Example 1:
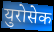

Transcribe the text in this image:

युरोसेक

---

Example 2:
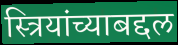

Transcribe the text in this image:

स्त्रियांच्याबद्दल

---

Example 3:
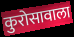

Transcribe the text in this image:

कुरोसावाला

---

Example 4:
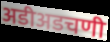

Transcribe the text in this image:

अडीअडचणी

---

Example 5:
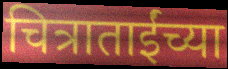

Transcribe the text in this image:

चित्राताईंच्या